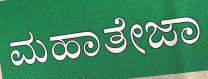
ಮಹಾತೇಜಾ